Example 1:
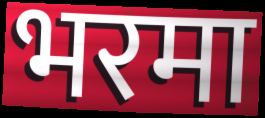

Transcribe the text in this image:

भरमा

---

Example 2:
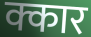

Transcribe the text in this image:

क्कार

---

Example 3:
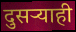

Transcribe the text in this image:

दुसर्‍याही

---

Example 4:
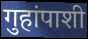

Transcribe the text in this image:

गुहांपाशी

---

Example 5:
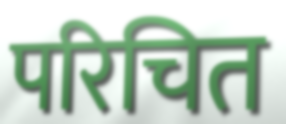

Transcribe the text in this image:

परिचित